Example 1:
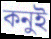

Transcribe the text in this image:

কনুই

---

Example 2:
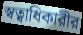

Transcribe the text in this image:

স্বত্বাধিকারীর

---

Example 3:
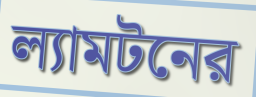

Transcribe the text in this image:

ল্যামটনের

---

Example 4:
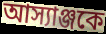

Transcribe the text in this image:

আস্যাঞ্জকে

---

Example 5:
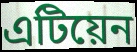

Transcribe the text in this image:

এটিয়েন